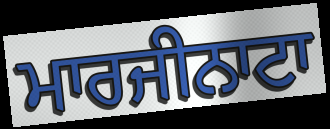
ਮਾਰਜੀਨਾਟਾ